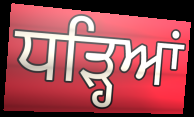
ਧੜ੍ਹਿਆਂ